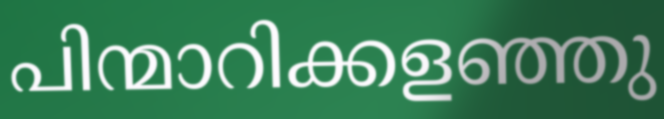
പിന്മാറിക്കളഞ്ഞു